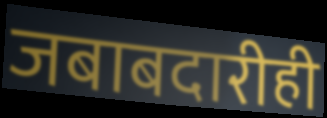
जबाबदारीही